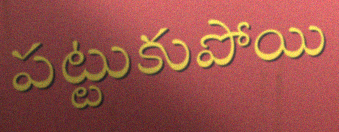
పట్టుకుపోయి